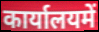
कार्यालयमें